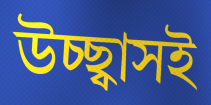
উচ্ছ্বাসই